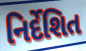
નિર્દેશિત